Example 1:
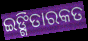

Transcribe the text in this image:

ଇଙ୍ଗିତାରକତ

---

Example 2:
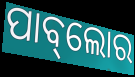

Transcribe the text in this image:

ପାବ୍‌ଲୋର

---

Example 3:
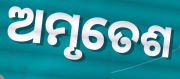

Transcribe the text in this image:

ଅମୃତେଶ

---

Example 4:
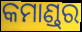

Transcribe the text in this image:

କମାଣ୍ଡ୍‌ର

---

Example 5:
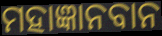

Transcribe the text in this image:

ମହାଜ୍ଞାନବାନ